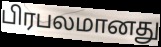
பிரபலமானது